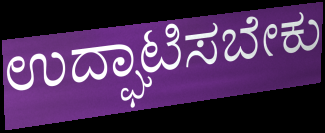
ಉದ್ಘಾಟಿಸಬೇಕು